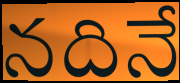
నదినే